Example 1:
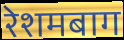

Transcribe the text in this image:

रेशमबाग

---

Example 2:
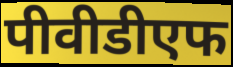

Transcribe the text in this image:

पीवीडीएफ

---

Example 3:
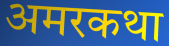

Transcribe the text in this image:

अमरकथा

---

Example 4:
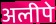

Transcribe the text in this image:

अलीपे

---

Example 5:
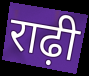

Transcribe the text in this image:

राढ़ी